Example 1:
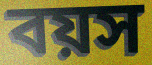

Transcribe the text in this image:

বয়স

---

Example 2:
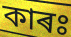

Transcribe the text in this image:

কাৰঃ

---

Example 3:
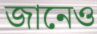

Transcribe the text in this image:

জানেও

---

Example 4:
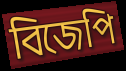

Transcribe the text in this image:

বিজেপি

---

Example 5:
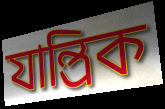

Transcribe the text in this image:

যান্ত্ৰিক